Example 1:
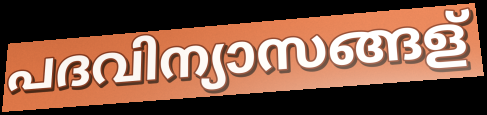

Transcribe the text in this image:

പദവിന്യാസങ്ങള്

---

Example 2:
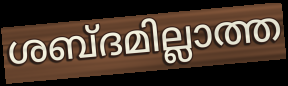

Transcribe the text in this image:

ശബ്ദമില്ലാത്ത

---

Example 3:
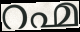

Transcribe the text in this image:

റഹ്മ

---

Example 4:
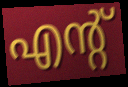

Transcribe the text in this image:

എന്റ്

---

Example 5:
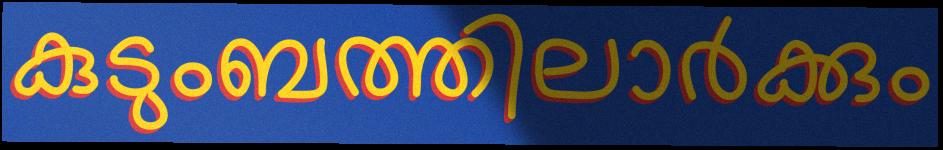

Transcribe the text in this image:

കുടുംബത്തിലാർക്കും